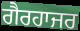
ਗੈਰਹਾਜਰ